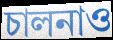
চালনাও